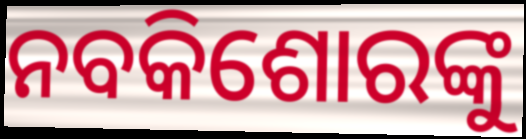
ନବକିଶୋରଙ୍କୁ